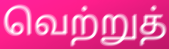
வெற்றுத்